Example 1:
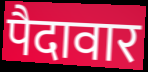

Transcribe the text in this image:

पैदावार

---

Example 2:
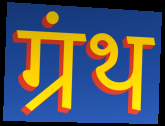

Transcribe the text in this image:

ग्रंथ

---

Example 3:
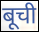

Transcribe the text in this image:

बूची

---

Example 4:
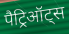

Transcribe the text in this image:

पैट्रिऑट्स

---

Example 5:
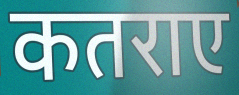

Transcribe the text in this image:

कतराए